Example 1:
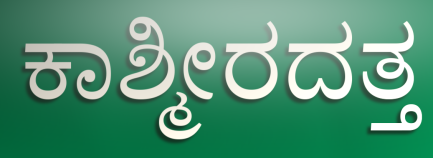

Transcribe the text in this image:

ಕಾಶ್ಮೀರದತ್ತ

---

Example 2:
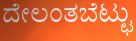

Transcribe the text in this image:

ದೇಲಂತಬೆಟ್ಟು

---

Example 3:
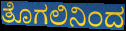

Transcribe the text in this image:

ತೊಗಲಿನಿಂದ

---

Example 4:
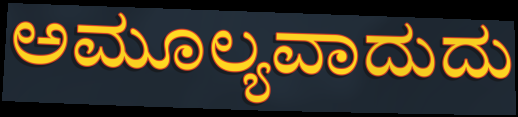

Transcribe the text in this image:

ಅಮೂಲ್ಯವಾದುದು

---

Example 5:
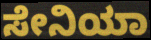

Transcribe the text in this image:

ಸೇನಿಯಾ